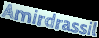
Amirdrassil